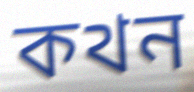
কথন